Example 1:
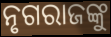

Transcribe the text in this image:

ନୃଗରାଜଙ୍କୁ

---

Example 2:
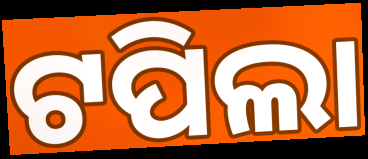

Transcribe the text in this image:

ଟପିଲା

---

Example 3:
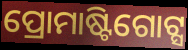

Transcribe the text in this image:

ପ୍ରୋମାଷ୍ଟିଗୋଟ୍ସ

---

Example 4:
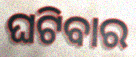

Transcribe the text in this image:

ଘଟିବାର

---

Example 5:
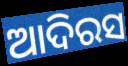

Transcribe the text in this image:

ଆଦିରସ